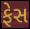
ફેસ